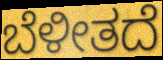
ಬೆಳೀತದೆ